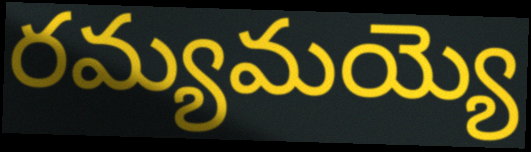
రమ్యమయ్యె